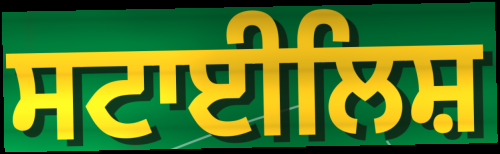
ਸਟਾਈਲਿਸ਼